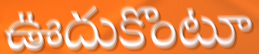
ఊదుకొంటూ